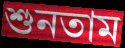
শুনতাম